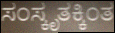
ಸಂಸ್ಕೃತಕ್ಕಿಂತ